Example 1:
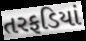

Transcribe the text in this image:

તરફડિયાં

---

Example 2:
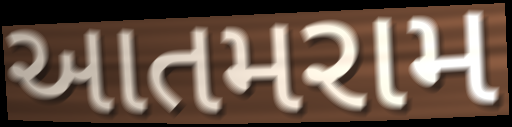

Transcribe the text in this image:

આતમરામ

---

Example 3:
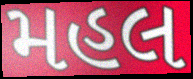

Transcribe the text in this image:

મહલ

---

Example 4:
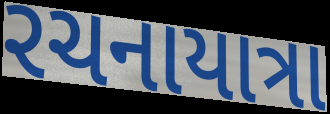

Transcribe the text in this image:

રચનાયાત્રા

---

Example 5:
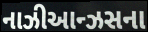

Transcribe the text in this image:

નાઝીઆન્ઝસના